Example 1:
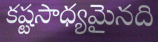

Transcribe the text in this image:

కష్టసాధ్యమైనది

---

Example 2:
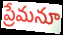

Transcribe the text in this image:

ప్రేమనూ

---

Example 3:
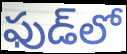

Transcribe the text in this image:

ఫుడ్‌లో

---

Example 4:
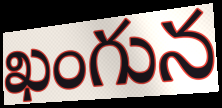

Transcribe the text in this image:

ఖంగున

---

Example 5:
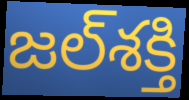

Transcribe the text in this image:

జల్‌శక్తి